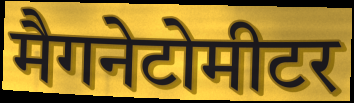
मैगनेटोमीटर